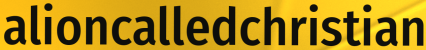
alioncalledchristian